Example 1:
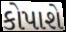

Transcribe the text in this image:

કોપાશે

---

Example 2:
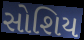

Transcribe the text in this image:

સોશિય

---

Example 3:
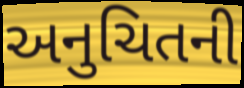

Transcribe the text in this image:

અનુચિતની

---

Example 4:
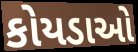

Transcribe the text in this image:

કોયડાઓ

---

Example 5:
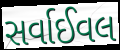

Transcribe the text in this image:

સર્વાઈવલ